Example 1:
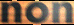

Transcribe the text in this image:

non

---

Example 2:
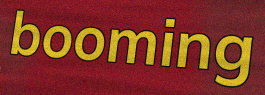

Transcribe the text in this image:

booming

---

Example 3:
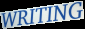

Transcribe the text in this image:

WRITING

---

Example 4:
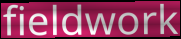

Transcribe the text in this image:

fieldwork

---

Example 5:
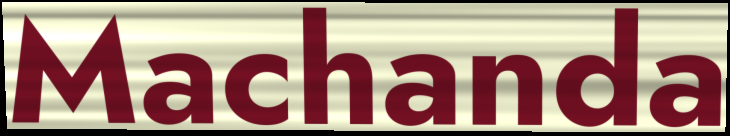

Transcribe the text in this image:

Machanda